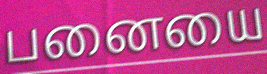
பனையை